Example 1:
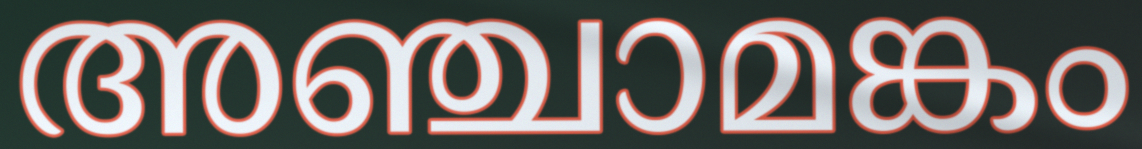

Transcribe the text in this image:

അഞ്ചാമങ്കം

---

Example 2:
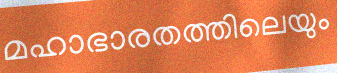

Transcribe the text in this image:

മഹാഭാരതത്തിലെയും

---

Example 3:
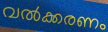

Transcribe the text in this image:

വൽക്കരണം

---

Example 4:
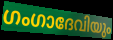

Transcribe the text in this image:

ഗംഗാദേവിയും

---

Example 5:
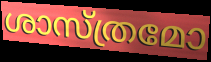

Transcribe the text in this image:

ശാസ്ത്രമോ